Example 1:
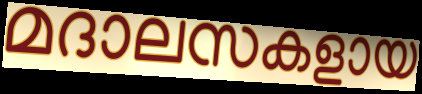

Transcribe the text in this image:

മദാലസകളായ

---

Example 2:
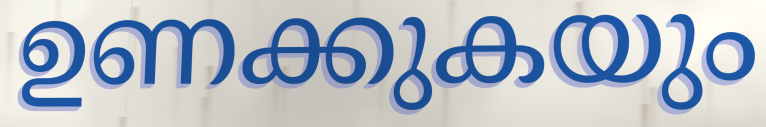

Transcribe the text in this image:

ഉണക്കുകയും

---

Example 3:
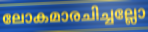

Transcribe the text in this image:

ലോകമാരചിച്ചല്ലോ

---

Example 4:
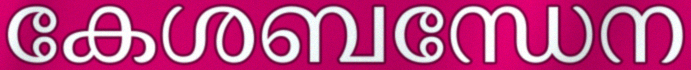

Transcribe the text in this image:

കേശബന്ധേന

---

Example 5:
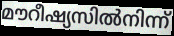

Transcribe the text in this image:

മൗറീഷ്യസിൽനിന്ന്